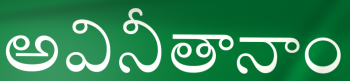
అవినీతానాం